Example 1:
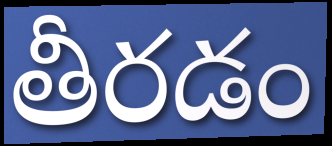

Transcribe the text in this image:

తీరడం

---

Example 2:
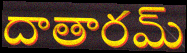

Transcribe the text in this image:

దాతారమ్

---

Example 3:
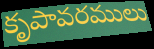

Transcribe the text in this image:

కృపావరములు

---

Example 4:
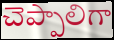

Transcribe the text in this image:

చెప్పాలిగా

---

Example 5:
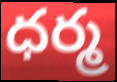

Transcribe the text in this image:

ధర్మ